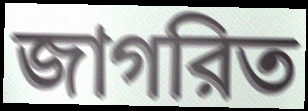
জাগরিত